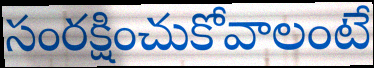
సంరక్షించుకోవాలంటే